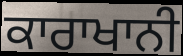
ਕਾਰਾਖਾਨੀ